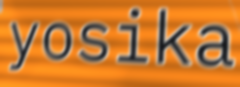
yosika